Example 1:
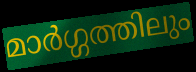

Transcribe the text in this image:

മാർഗ്ഗത്തിലും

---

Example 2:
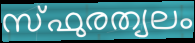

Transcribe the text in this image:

സ്ഫുരത്യലം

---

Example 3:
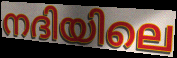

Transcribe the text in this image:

നദിയിലെ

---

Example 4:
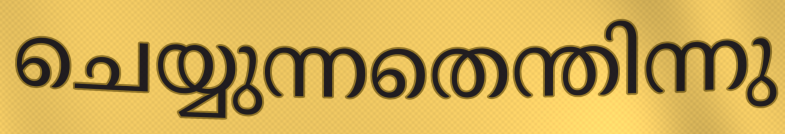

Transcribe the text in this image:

ചെയ്യുന്നതെന്തിന്നു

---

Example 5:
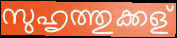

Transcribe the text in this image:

സുഹൃത്തുക്കള്